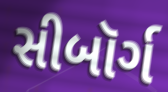
સીબૉર્ગ